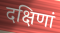
दक्षिणां